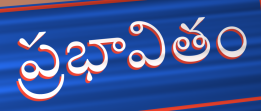
ప్రభావితం